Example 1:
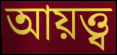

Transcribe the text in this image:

আয়ত্ত্ব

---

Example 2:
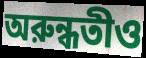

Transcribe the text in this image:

অরুন্ধতীও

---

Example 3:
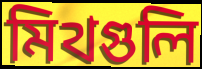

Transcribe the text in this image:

মিথগুলি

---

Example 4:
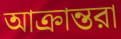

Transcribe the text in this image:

আক্রান্তরা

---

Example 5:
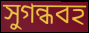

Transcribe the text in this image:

সুগন্ধবহ